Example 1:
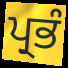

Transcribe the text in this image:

ਪ੍ਰਭੰ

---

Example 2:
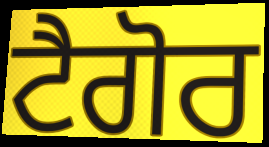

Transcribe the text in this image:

ਟੈਗੋਰ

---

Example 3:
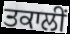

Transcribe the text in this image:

ਤਕਾਲੀਂ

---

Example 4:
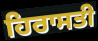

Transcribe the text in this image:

ਹਿਰਾਸਤੀ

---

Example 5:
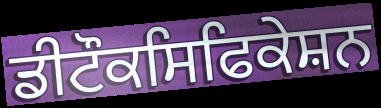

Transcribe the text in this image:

ਡੀਟੌਕਸਿਫਿਕੇਸ਼ਨ